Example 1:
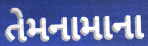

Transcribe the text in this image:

તેમનામાના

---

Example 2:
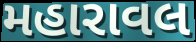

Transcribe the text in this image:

મહારાવલ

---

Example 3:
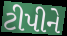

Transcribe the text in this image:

ટીપીને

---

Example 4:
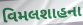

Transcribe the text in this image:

વિમલશાહના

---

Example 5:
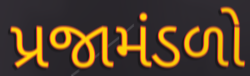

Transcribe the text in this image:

પ્રજામંડળો